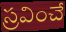
స్రవించే